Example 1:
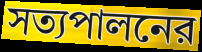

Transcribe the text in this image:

সত্যপালনের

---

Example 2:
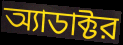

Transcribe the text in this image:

অ্যাডাক্টর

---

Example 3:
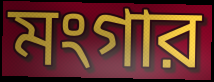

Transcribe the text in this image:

মংগার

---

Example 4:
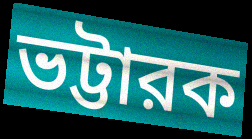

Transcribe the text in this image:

ভট্টারক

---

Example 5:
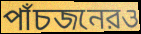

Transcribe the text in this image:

পাঁচজনেরও